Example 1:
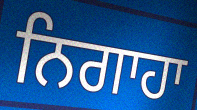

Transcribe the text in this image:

ਨਿਗਾਹਾ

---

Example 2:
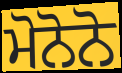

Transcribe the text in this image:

ਮੋਨੋਨੋ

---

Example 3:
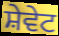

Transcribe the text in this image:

ਸ਼ੇਵੇਟ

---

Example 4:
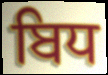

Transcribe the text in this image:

ਬਿਧ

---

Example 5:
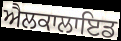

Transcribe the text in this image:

ਐਲਕਾਲਾਇਡ